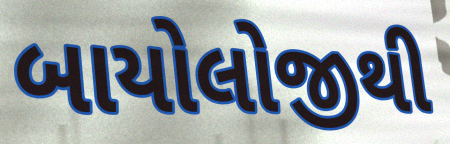
બાયોલોજીથી